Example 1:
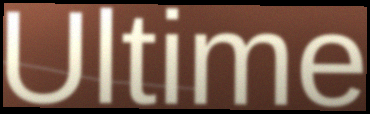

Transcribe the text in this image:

Ultime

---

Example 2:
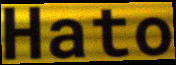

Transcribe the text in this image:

Hato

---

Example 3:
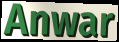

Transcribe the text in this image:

Anwar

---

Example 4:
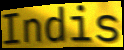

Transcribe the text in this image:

Indis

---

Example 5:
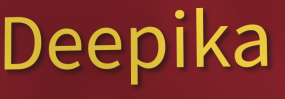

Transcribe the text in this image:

Deepika